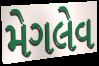
મેગલેવ